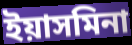
ইয়াসমিনা